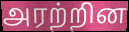
அரற்றின